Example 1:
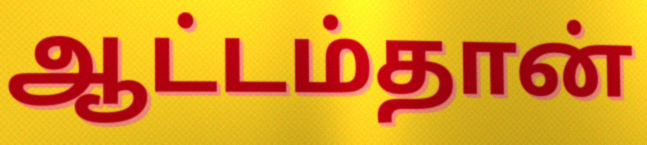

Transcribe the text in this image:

ஆட்டம்தான்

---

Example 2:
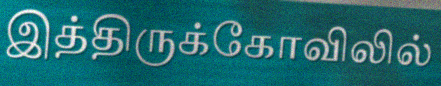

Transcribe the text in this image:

இத்திருக்கோவிலில்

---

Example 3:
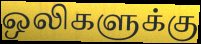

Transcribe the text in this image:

ஒலிகளுக்கு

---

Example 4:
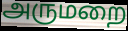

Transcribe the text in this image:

அருமறை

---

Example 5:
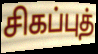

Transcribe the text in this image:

சிகப்புத்